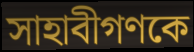
সাহাবীগণকে